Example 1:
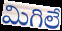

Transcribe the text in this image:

మిగిలే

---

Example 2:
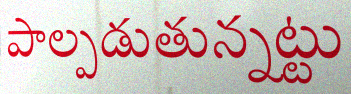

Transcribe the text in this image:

పాల్పడుతున్నట్టు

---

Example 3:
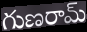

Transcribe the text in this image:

గుణరామ్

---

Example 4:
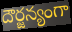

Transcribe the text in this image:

దౌర్జన్యంగా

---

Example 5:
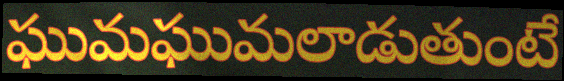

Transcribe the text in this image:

ఘుమఘుమలాడుతుంటే